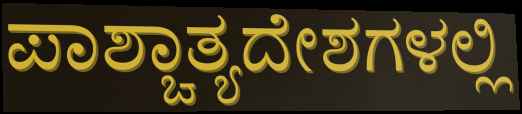
ಪಾಶ್ಚಾತ್ಯದೇಶಗಳಲ್ಲಿ